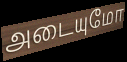
அடையுமோ